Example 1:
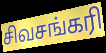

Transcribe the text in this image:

சிவசங்கரி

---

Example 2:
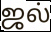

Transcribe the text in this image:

ஜல்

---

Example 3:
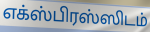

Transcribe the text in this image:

எக்ஸ்பிரஸ்ஸிடம்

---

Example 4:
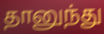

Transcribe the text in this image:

தானுந்து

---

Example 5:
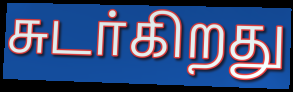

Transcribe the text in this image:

சுடர்கிறது